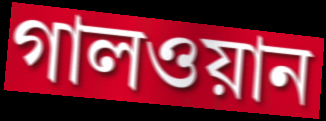
গালওয়ান